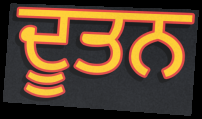
ਦੂਤਨ